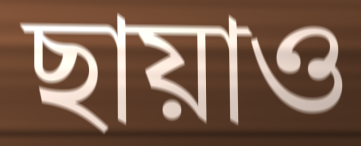
ছায়াও